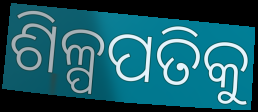
ଶିଳ୍ପପତିକୁ